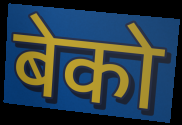
बेको